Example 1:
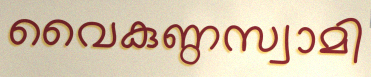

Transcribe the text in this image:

വൈകുണ്ഠസ്വാമി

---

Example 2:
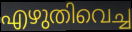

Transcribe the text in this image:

എഴുതിവെച്ച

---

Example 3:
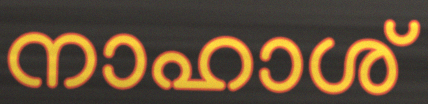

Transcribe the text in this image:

നാഹാശ്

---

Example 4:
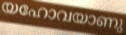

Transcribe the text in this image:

യഹോവയാണു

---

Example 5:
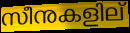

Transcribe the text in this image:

സീനുകളില്